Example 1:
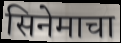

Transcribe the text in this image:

सिनेमाचा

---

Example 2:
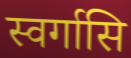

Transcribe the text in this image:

स्वर्गासि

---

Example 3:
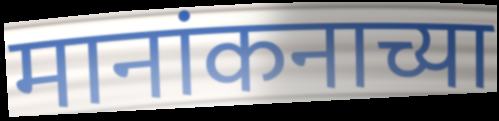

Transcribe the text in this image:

मानांकनाच्या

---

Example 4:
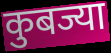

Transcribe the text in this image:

कुबज्या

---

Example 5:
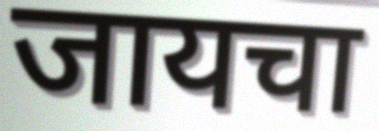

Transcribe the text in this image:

जायचा